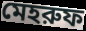
মেহরুফ